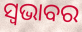
ସ୍ଵଭାବର